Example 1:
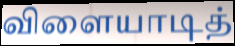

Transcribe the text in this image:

விளையாடித்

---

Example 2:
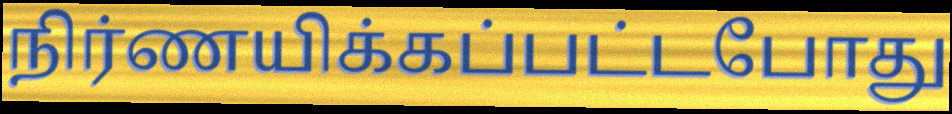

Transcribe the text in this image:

நிர்ணயிக்கப்பட்டபோது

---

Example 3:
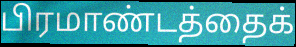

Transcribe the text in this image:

பிரமாண்டத்தைக்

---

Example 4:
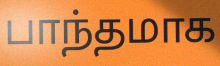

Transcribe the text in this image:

பாந்தமாக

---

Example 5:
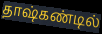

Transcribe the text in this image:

தாஷ்கண்டில்